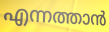
എന്നത്താൻ